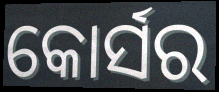
କୋର୍ସର